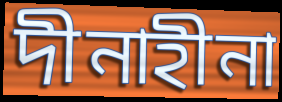
দীনাহীনা